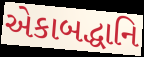
એકાબદ્ધાનિ